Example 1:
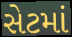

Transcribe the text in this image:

સેટમાં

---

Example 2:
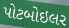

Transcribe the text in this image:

પોટબોઇલર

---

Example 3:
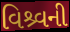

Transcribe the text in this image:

વિશ્ર્વની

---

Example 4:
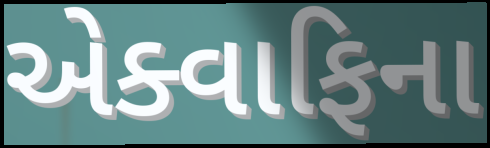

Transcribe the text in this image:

એક્વાફિના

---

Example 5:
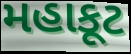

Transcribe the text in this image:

મહાકૂટ